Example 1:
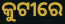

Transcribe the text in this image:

କୁଟୀରେ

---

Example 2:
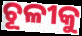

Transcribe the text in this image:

ଚୂଳୀକୁ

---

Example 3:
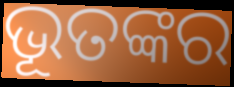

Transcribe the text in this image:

ଭୂତଙ୍କର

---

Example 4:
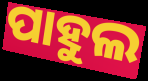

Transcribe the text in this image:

ପାହୁଲ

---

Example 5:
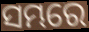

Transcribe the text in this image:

ସମ୍ଭରେ